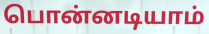
பொன்னடியாம்